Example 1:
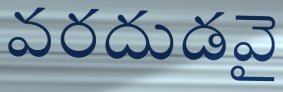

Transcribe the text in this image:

వరదుడవై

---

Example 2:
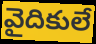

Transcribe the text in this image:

వైదికులే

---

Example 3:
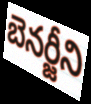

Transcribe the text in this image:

బెనర్జీని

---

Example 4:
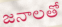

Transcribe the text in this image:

జనాలతో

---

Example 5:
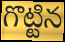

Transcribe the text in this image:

గొట్టిన